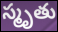
స్మృతు